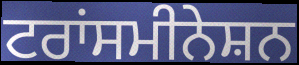
ਟਰਾਂਸਮੀਨੇਸ਼ਨ